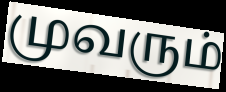
முவரும்